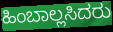
ಹಿಂಬಾಲ್ಲಸಿದರು